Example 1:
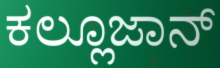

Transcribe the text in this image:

ಕಲ್ಲೂಜಾನ್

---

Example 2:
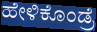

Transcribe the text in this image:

ಹೇಳಿಕೊಂಡ್ರೆ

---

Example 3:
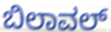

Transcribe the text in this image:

ಬಿಲಾವಲ್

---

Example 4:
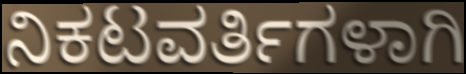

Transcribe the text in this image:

ನಿಕಟವರ್ತಿಗಳಾಗಿ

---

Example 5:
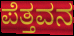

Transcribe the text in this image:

ಪೆತ್ತವನ